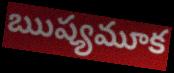
ఋష్యమూక